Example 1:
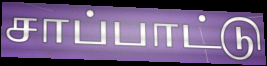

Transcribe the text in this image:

சாப்பாட்டு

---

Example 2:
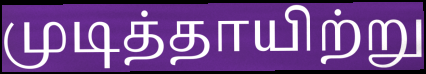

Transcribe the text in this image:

முடித்தாயிற்று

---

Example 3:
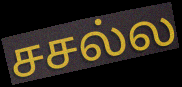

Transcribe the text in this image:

சசல்ல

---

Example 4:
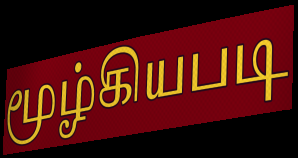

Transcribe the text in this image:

மூழ்கியபடி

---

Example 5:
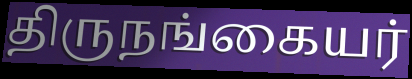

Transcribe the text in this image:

திருநங்கையர்